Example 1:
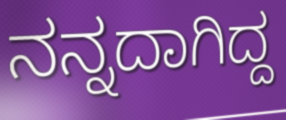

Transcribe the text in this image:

ನನ್ನದಾಗಿದ್ದ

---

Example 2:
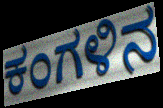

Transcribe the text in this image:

ಕಂಗಳಿನ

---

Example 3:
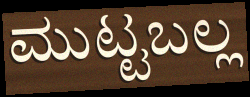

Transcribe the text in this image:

ಮುಟ್ಟಬಲ್ಲ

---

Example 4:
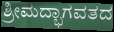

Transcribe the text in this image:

ಶ್ರೀಮದ್ಭಾಗವತದ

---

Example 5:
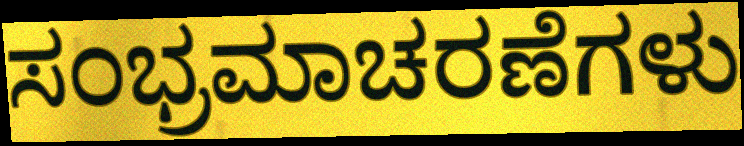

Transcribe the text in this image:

ಸಂಭ್ರಮಾಚರಣೆಗಳು